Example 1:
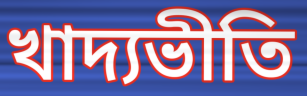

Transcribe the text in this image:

খাদ্যভীতি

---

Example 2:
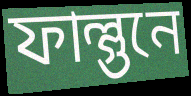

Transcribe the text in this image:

ফাল্গুনে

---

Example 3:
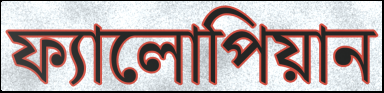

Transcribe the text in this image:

ফ্যালোপিয়ান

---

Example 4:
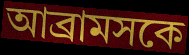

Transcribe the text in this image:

আব্রামসকে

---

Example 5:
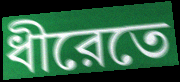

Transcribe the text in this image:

ধীরেতে